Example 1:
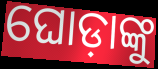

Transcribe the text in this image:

ଘୋଡ଼ାଙ୍କୁ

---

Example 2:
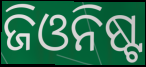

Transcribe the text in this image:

ଜିଓନିଷ୍ଟ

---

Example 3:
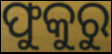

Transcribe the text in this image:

ଫୁକୁରୁ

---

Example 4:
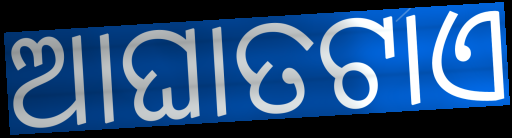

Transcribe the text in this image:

ଆଘାତଟାଏ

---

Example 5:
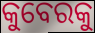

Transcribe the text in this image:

କୁବେରକୁ